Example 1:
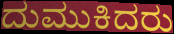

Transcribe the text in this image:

ದುಮುಕಿದರು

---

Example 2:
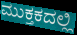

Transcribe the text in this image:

ಮುಕ್ತಕದಲ್ಲಿ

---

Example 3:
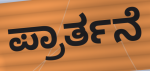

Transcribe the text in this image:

ಪ್ರಾರ್ತನೆ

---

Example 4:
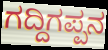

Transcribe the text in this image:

ಗದ್ದಿಗಪ್ಪನ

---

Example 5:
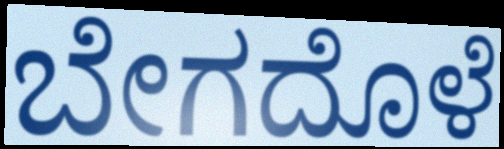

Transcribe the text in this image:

ಬೇಗದೊಳೆ